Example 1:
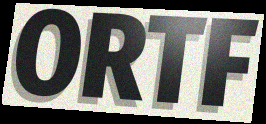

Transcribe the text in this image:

ORTF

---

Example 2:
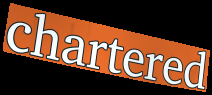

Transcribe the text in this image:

chartered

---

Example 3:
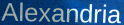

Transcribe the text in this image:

Alexandria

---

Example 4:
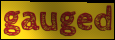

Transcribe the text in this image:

gauged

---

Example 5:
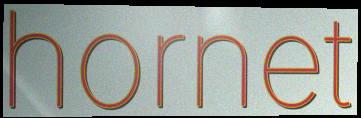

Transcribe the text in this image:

hornet